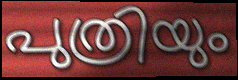
പുത്രിയും